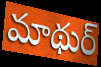
మాథుర్